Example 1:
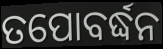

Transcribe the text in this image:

ତପୋବର୍ଦ୍ଧନ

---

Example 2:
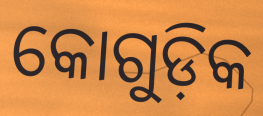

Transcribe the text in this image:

କୋଗୁଡ଼ିକ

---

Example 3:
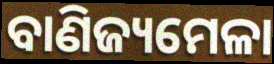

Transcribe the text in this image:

ବାଣିଜ୍ୟମେଳା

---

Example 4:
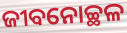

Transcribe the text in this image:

ଜୀବନୋଚ୍ଛଳ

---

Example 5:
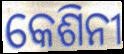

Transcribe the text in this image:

କେଶିନୀ